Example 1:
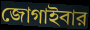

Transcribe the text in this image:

জোগাইবার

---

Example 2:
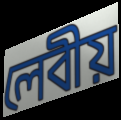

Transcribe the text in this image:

লেবীয়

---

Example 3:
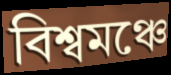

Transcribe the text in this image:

বিশ্বমঞ্চে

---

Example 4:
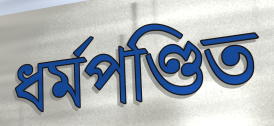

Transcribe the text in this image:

ধর্মপণ্ডিত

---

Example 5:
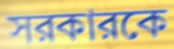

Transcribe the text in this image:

সরকারকে